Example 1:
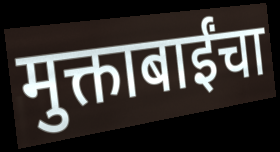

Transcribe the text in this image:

मुक्ताबाईंचा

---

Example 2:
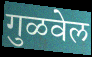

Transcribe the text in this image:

गुळवेल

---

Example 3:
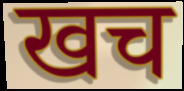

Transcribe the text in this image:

खच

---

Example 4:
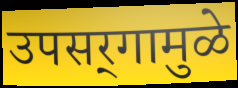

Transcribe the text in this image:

उपसर्गामुळे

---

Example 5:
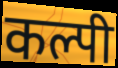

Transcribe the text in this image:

कल्पी